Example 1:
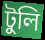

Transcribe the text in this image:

টুলি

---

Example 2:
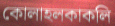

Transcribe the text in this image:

কোলাহলকাকলি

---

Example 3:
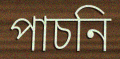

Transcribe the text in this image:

পাচনি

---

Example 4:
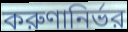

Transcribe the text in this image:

করুণানির্ভর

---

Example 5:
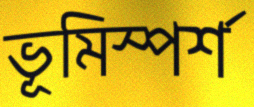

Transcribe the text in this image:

ভূমিস্পর্শ